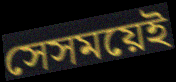
সেসময়েই